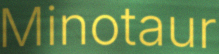
Minotaur